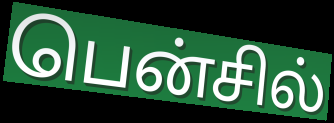
பென்சில்